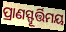
ପ୍ରାଣସ୍ଫୂର୍ତ୍ତିମୟ